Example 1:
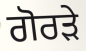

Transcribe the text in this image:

ਗੋਰੜੇ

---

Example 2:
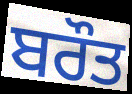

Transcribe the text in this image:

ਬਰੌਤ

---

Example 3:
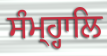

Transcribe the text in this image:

ਸੰਮ੍ਹ੍ਹਾਲਿ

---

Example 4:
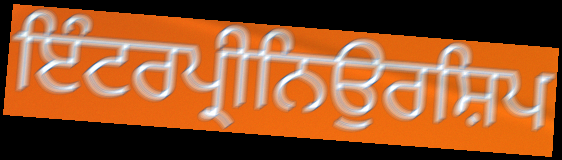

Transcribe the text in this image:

ਇੰਟਰਪ੍ਰੀਨਿਉਰਸ਼ਿਪ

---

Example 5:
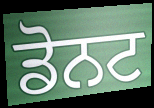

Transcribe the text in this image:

ਡੋਨਟ